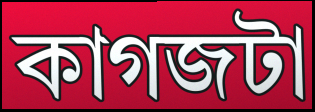
কাগজটা